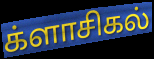
க்ளாசிகல்